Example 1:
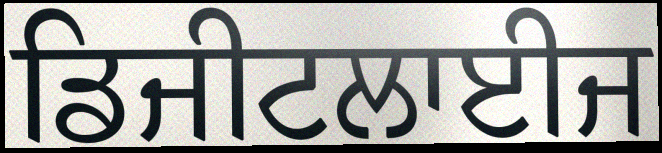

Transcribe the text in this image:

ਡਿਜੀਟਲਾਈਜ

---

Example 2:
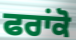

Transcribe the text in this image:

ਫਰਾਂਕੋ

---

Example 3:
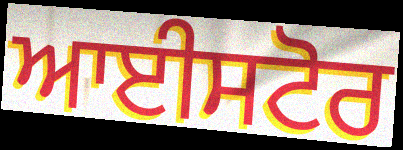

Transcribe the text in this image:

ਆਈਸਟੋਰ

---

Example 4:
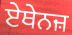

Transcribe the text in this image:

ਏਥੇਨਜ਼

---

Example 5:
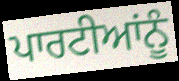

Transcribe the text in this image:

ਪਾਰਟੀਆਂਨੂੰ